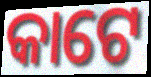
କାଟେ